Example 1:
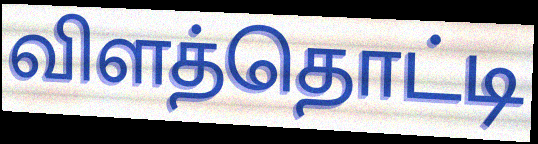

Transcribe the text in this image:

விளத்தொட்டி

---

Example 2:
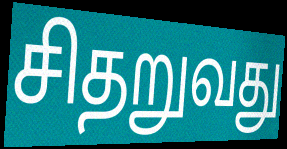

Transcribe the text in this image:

சிதறுவது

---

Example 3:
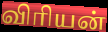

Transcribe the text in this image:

விரியன்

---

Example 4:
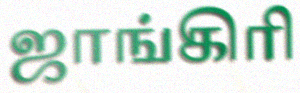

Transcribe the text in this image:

ஜாங்கிரி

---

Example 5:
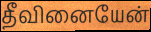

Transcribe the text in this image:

தீவினையேன்